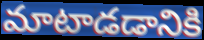
మాటాడడానికి